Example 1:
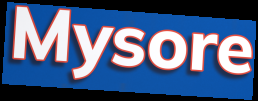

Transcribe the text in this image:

Mysore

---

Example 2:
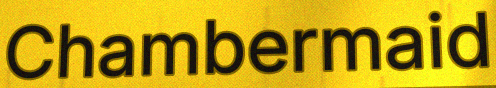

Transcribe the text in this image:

Chambermaid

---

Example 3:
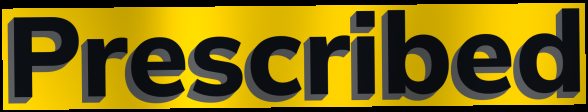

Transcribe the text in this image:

Prescribed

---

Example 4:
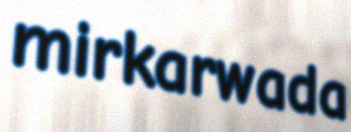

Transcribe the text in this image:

mirkarwada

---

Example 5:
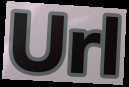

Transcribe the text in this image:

Url